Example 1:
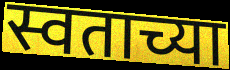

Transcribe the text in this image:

स्वताच्या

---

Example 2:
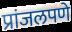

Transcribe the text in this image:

प्रांजलपणे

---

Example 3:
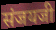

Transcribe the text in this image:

संजयजी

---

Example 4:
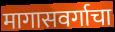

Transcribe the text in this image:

मागासवर्गाचा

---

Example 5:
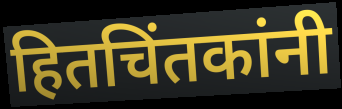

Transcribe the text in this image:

हितचिंतकांनी